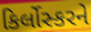
કિર્લોસ્કરને